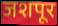
जशपूर